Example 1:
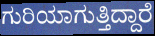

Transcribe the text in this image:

ಗುರಿಯಾಗುತ್ತಿದ್ದಾರೆ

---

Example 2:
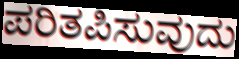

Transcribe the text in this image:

ಪರಿತಪಿಸುವುದು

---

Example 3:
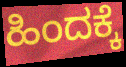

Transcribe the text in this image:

ಹಿಂದಕ್ಕೆ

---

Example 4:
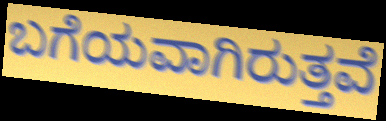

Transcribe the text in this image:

ಬಗೆಯವಾಗಿರುತ್ತವೆ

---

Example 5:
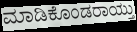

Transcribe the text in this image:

ಮಾಡಿಕೊಂಡರಾಯ್ತು